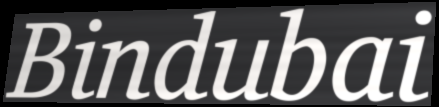
Bindubai